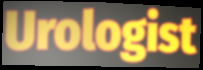
Urologist